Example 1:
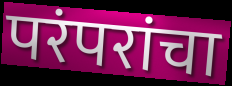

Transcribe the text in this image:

परंपरांचा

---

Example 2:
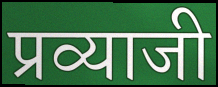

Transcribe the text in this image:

प्रव्याजी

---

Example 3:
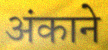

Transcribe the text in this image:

अंकाने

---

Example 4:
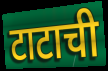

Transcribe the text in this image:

टाटाची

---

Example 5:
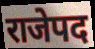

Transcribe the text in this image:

राजेपद